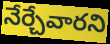
నేర్చేవారని